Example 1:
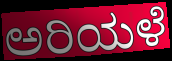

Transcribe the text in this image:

ಅರಿಯಳೆ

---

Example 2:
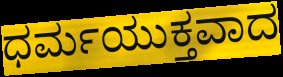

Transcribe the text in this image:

ಧರ್ಮಯುಕ್ತವಾದ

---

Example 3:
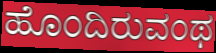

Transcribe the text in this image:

ಹೊಂದಿರುವಂಥ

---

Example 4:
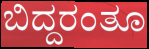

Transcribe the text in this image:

ಬಿದ್ದರಂತೂ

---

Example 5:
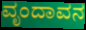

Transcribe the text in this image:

ವೃಂದಾವನ